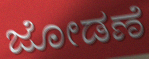
ಜೋಡಣೆ